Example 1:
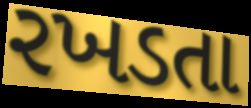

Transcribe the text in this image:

રખડતા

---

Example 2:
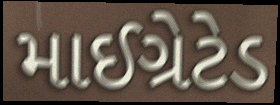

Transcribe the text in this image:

માઈગ્રેટેડ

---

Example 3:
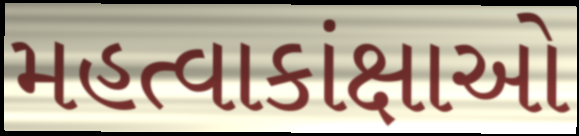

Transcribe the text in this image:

મહત્વાકાંક્ષાઓ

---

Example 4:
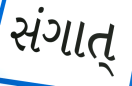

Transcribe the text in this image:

સંગાત્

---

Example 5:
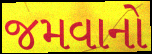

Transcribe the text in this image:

જમવાનો